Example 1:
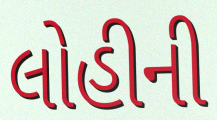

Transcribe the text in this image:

લોહીની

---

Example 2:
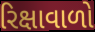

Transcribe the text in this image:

રિક્ષાવાળો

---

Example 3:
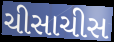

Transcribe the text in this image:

ચીસાચીસ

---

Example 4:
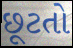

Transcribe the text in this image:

છૂટતો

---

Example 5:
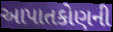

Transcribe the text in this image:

આપાતકોણની